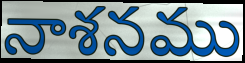
నాశనము